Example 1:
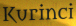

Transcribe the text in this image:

Kurinci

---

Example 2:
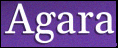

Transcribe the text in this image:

Agara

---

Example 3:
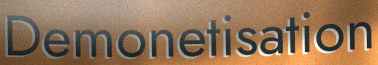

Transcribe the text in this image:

Demonetisation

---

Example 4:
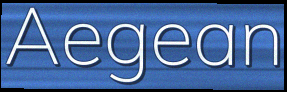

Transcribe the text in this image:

Aegean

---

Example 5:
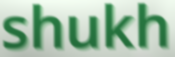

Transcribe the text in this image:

shukh